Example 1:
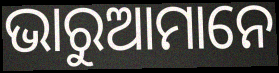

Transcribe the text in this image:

ଭାରୁଆମାନେ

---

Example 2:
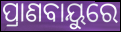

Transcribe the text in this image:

ପ୍ରାଣବାୟୁରେ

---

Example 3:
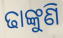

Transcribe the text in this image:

ଢାଙ୍କୁଣି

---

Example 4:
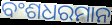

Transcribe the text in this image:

ବଂଶଧରମାନ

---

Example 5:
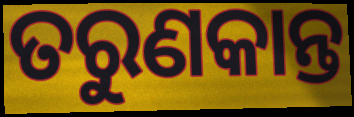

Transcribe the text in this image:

ତରୁଣକାନ୍ତ